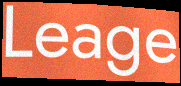
Leage